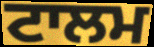
ਟਾਲਮ